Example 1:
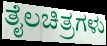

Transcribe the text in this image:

ತೈಲಚಿತ್ರಗಳು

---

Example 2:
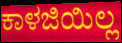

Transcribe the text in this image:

ಕಾಳಜಿಯಿಲ್ಲ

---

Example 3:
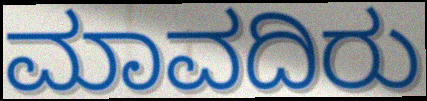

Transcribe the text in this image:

ಮಾವದಿರು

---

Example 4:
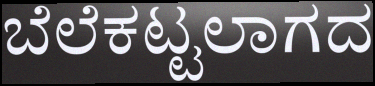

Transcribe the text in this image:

ಬೆಲೆಕಟ್ಟಲಾಗದ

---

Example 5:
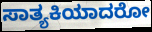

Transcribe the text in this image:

ಸಾತ್ಯಕಿಯಾದರೋ